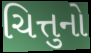
ચિત્તુનો